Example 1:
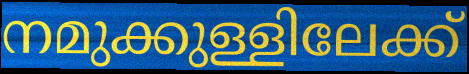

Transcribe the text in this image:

നമുക്കുള്ളിലേക്ക്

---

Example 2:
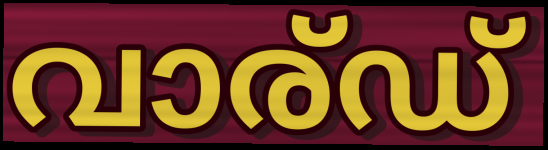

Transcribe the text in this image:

വാര്ഡ്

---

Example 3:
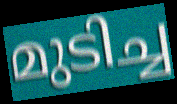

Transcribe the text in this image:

മുടിച്ച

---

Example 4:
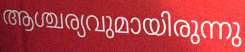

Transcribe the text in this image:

ആശ്ചര്യവുമായിരുന്നു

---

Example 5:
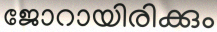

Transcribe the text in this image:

ജോറായിരിക്കും